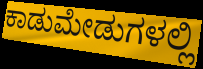
ಕಾಡುಮೇಡುಗಳಲ್ಲಿ